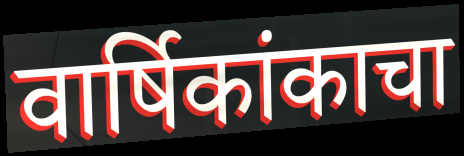
वार्षिकांकाचा